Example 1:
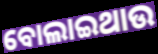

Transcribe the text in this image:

ବୋଲାଇଥାଉ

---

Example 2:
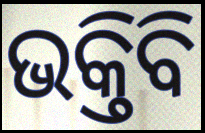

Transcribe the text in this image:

ଭକ୍ତିବି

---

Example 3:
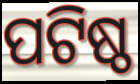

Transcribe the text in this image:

ପଟିଷ୍ଠ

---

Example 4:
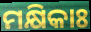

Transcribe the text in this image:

ମକ୍ଷିକାଃ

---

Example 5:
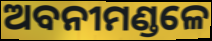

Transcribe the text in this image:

ଅବନୀମଣ୍ଡଳେ